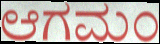
ಆಗಮಂ